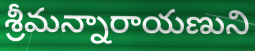
శ్రీమన్నారాయణుని